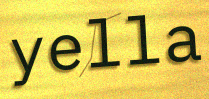
yella